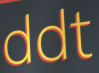
ddt